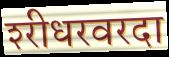
श्रीधरवरदा